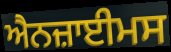
ਐਨਜ਼ਾਈਮਸ